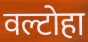
वल्टोहा